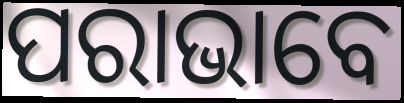
ପରାଭାବେ